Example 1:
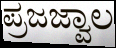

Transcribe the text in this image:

ಪ್ರಜಜ್ವಾಲ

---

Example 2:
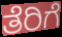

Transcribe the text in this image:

ತೆರಿಗೆ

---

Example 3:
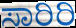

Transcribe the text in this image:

ಸಾರಿರಿ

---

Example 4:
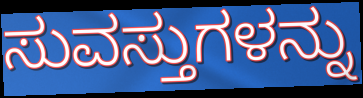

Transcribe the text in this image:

ಸುವಸ್ತುಗಳನ್ನು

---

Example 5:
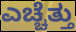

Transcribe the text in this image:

ಎಚ್ಚೆತ್ತು